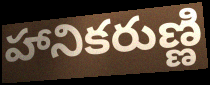
హానికరుణ్ణి